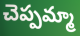
చెప్పమ్మా